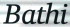
Bathi